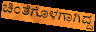
ಚಿಂತೆಗೊಳಗಾಗಿದ್ದ